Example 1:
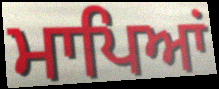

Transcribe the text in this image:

ਮਾਪਿਆਂ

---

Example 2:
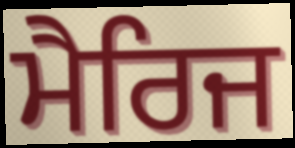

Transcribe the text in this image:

ਮੈਰਿਜ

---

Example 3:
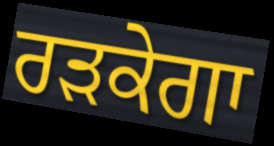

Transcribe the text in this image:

ਰੜਕੇਗਾ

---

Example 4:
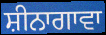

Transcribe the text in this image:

ਸ਼ੀਨਾਗਾਵਾ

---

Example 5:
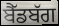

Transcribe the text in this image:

ਬੈੱਡਬੱਗ